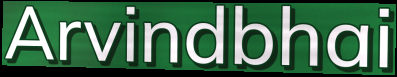
Arvindbhai